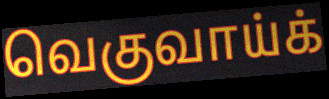
வெகுவாய்க்